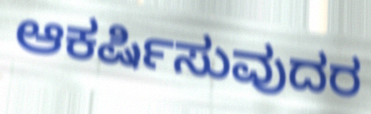
ಆಕರ್ಷಿಸುವುದರ